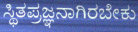
ಸ್ಥಿತಪ್ರಜ್ಞನಾಗಿರಬೇಕು